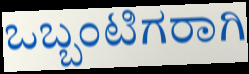
ಒಬ್ಬಂಟಿಗರಾಗಿ